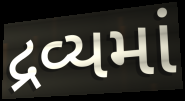
દ્રવ્યમાં